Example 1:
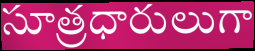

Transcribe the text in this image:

సూత్రధారులుగా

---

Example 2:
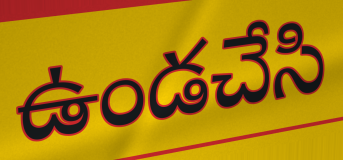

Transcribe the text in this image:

ఉండచేసి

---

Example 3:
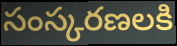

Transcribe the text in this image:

సంస్కరణలకి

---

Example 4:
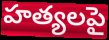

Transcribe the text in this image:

హత్యలపై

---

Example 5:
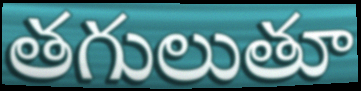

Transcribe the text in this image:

తగులుతూ